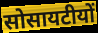
सोसायटीयों